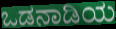
ಒಡನಾಡಿಯ